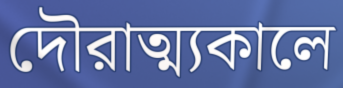
দৌরাত্ম্যকালে